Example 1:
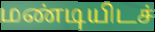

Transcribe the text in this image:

மண்டியிடச்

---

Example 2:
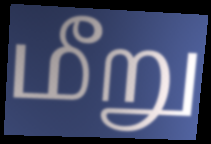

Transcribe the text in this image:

மீறு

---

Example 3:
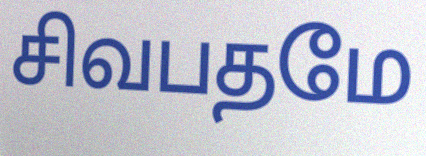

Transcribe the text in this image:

சிவபதமே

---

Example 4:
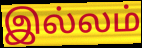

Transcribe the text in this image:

இல்லம்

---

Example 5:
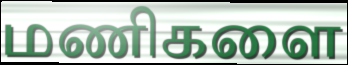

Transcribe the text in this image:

மணிகளை